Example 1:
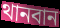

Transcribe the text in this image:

থানবান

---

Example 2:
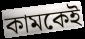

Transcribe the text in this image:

কামকেই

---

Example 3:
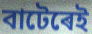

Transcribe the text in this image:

বাটেৰেই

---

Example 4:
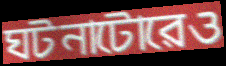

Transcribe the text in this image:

ঘটনাটোৱেও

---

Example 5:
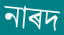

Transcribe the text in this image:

নাৰদ